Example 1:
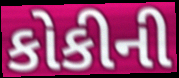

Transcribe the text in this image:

કોકીની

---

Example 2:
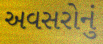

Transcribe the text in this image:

અવસરોનું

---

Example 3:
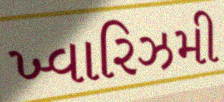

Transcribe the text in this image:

ખ્વારિઝમી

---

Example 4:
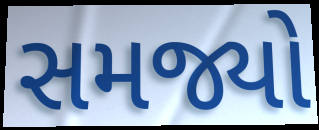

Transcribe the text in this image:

સમજ્યો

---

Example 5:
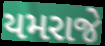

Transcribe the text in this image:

યમરાજે